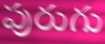
పురుగు